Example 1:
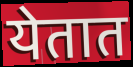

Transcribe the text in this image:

येतात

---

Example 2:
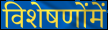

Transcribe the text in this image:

विशेषणोंमें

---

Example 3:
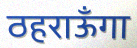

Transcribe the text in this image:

ठहराऊँगा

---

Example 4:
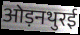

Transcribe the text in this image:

ओड़नथुरई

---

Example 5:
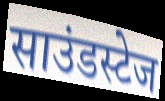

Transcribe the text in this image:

साउंडस्टेज